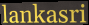
lankasri